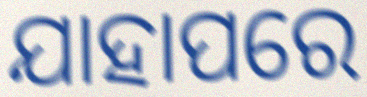
ଯାହାପରେ